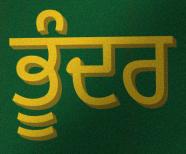
ਭੂੰਦਰ